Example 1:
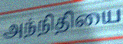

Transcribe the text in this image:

அந்நிதியை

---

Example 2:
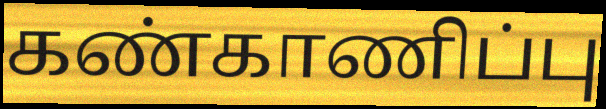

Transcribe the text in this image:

கண்காணிப்பு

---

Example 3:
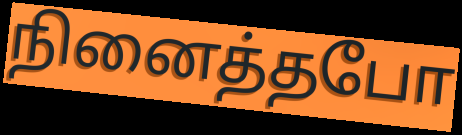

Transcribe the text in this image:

நினைத்தபோ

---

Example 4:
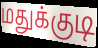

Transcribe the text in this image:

மதுக்குடி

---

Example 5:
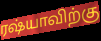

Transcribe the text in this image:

ரஷ்யாவிற்கு